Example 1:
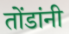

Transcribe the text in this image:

तोंडांनी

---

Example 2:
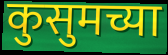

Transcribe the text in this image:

कुसुमच्या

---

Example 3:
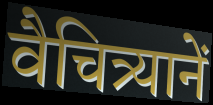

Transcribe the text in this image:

वैचित्र्यानें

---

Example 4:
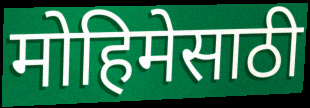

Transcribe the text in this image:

मोहिमेसाठी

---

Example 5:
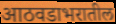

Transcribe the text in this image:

आठवडाभरातील